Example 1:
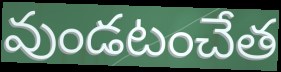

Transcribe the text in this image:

వుండటంచేత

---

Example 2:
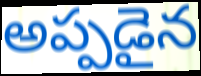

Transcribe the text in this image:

అప్పడైన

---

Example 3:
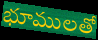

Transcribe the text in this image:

భూములతో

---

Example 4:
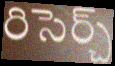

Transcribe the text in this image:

రిసెర్చ్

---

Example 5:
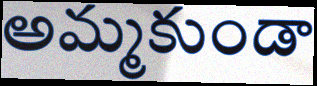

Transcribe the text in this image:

అమ్మకుండా